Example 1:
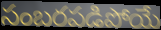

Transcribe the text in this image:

సంబరపడిపోయే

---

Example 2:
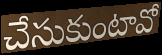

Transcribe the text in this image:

చేసుకుంటావో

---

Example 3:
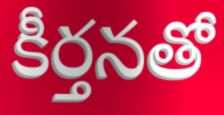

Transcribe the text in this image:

కీర్తనతో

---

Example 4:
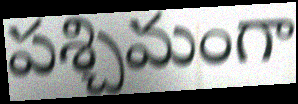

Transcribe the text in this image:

పశ్చిమంగా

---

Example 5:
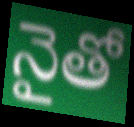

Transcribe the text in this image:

నైతో